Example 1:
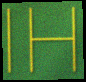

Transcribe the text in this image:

IH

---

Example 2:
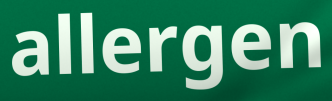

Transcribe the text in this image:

allergen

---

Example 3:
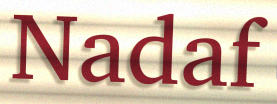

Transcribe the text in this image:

Nadaf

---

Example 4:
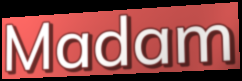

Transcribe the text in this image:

Madam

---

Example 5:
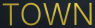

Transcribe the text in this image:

TOWN